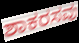
ಶಾಕರಸವು